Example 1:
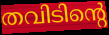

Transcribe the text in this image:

തവിടിന്റെ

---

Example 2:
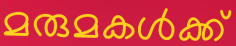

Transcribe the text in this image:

മരുമകൾക്ക്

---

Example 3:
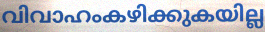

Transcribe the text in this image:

വിവാഹംകഴിക്കുകയില്ല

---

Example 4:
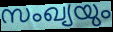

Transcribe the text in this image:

സംഖ്യയും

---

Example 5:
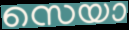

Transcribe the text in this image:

സെയാ